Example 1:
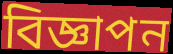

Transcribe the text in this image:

বিজ্ঞাপন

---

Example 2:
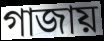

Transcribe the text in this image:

গাজায়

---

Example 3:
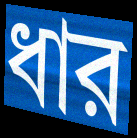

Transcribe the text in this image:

ধার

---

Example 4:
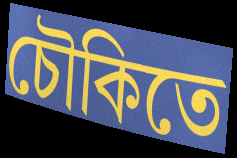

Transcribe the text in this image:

চৌকিতে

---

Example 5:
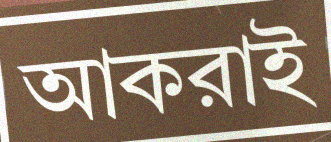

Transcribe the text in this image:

আকরাই